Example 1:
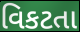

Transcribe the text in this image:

વિકટતા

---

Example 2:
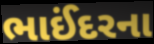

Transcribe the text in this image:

ભાઈંદરના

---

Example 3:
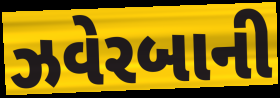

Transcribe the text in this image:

ઝવેરબાની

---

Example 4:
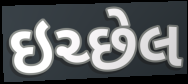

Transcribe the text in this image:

ઇચ્છેલ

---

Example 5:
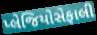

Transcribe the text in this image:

પ્લેજિયોસેફાલી